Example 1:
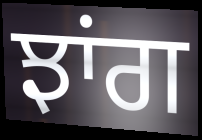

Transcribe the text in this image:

ਝਾਂਗ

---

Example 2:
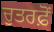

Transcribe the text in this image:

ਚੁਤਰਫ਼ੋਂ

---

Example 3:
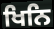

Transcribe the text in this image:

ਖਿਨਿ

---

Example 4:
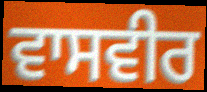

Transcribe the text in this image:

ਵਾਸਵੀਰ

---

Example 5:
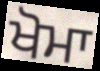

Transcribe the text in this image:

ਖੋਮਾ